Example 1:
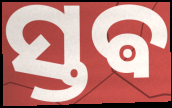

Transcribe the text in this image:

ସ୍ତଵ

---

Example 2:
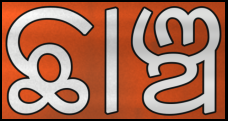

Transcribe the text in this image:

ଛାଞ୍ଚ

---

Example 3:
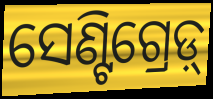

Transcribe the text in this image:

ସେଣ୍ଟିଗ୍ରେଡ଼୍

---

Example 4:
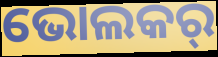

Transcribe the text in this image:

ଭୋଲକର୍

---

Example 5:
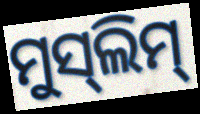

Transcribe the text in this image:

ମୁସ୍‌ଲିମ୍